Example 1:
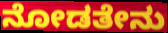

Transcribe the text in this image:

ನೋಡತೇನು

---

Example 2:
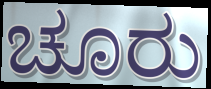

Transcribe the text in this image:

ಚೂರು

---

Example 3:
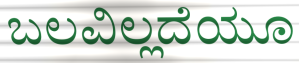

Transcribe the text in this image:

ಬಲವಿಲ್ಲದೆಯೂ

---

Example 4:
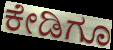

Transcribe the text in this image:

ಕೇಡಿಗೂ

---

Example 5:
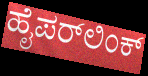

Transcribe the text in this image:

ಹೈಪರ್‌ಲಿಂಕ್